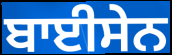
ਬਾਈਸੇਨ